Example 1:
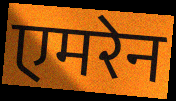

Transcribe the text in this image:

एमरेन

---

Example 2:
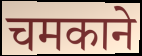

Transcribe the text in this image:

चमकाने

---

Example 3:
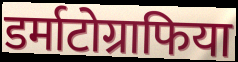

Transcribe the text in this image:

डर्माटोग्राफिया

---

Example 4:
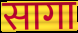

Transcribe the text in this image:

सागा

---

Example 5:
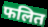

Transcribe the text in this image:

फलित